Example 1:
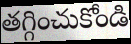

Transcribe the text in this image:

తగ్గించుకోండి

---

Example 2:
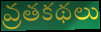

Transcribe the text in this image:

వ్రతకథలు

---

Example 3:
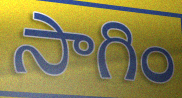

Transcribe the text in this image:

సాగిం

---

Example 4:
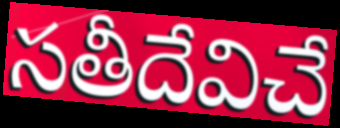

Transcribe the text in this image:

సతీదేవిచే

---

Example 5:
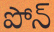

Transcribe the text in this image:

పోన్